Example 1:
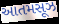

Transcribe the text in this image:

આતમસૂઝ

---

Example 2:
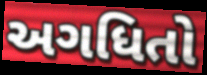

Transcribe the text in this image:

અગધિતો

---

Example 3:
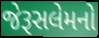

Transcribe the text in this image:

જેરૂસલેમનો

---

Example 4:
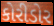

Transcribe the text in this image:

કોરીડોર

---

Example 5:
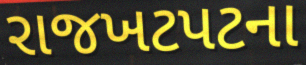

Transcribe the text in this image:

રાજખટપટના